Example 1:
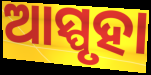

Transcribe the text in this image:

ଆସ୍ପୃହା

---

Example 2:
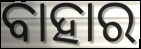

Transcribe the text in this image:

ବାହାର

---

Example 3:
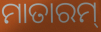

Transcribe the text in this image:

ମାତାରମ୍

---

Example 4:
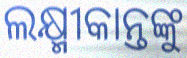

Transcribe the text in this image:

ଲକ୍ଷ୍ମୀକାନ୍ତଙ୍କୁ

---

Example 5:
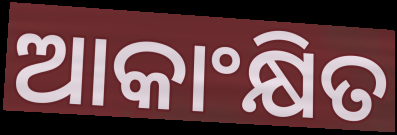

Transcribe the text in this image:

ଆକାଂକ୍ଷିତ